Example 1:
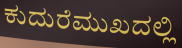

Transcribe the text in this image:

ಕುದುರೆಮುಖದಲ್ಲಿ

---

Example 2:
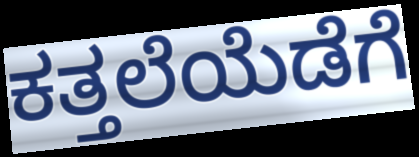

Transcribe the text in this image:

ಕತ್ತಲೆಯೆಡೆಗೆ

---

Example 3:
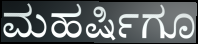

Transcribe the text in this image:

ಮಹರ್ಷಿಗೂ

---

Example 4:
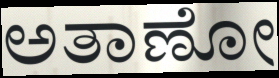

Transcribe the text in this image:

ಅತಾಣೋ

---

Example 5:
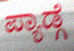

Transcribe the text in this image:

ಪ್ಯಾಡ್ಗೆ